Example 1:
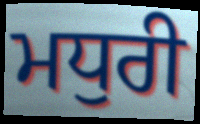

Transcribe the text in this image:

ਮਧੁਰੀ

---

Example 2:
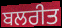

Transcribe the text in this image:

ਬਲਰੀਤ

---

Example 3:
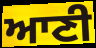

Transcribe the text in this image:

ਆਣੀ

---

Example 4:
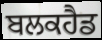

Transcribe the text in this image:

ਬਲਕਹੈਡ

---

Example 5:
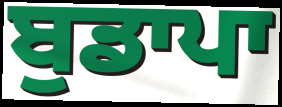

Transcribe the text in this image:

ਬੁਡਾਪਾ